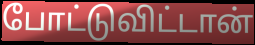
போட்டுவிட்டான்